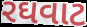
રઘવાટ